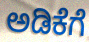
ಅಡಿಕೆಗೆ